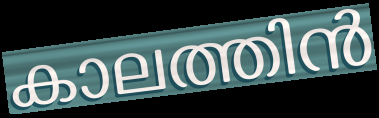
കാലത്തിൻ